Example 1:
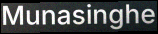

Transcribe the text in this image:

Munasinghe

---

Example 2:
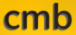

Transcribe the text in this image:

cmb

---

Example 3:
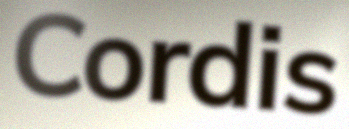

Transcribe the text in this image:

Cordis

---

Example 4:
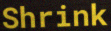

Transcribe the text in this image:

Shrink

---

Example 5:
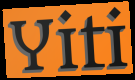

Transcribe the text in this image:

Yiti